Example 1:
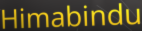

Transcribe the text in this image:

Himabindu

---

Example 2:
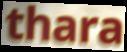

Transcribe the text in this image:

thara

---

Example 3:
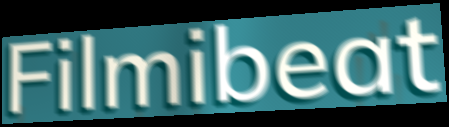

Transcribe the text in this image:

Filmibeat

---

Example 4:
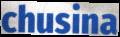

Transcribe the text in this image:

chusina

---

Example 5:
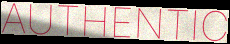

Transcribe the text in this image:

AUTHENTIC